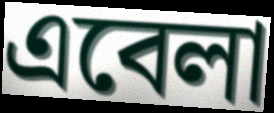
এবেলা